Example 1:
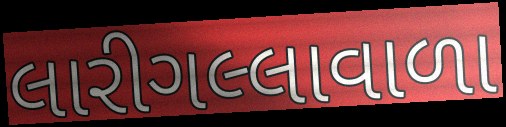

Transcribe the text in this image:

લારીગલ્લાવાળા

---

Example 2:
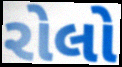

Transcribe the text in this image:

રોલો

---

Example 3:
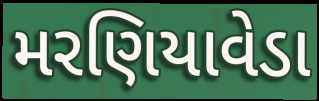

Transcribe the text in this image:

મરણિયાવેડા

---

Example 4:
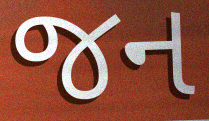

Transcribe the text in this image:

જન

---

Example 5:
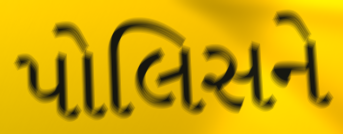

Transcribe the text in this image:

પોલિસને